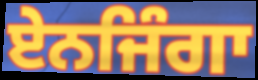
ਏਨਜਿੰਗਾ